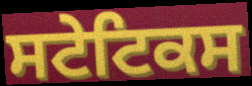
ਸਟੇਟਿਕਸ